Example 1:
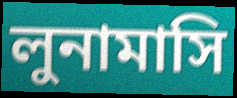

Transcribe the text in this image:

লুনামাসি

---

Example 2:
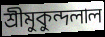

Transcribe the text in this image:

শ্রীমুকুন্দলাল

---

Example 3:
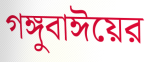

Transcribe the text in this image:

গঙ্গুবাঈয়ের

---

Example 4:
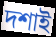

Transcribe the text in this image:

দশাই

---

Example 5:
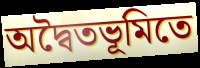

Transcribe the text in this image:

অদ্বৈতভূমিতে